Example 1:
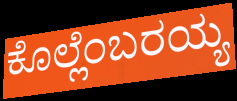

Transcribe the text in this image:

ಕೊಲ್ಲೆಂಬರಯ್ಯ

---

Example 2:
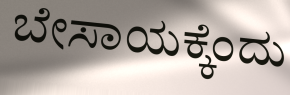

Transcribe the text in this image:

ಬೇಸಾಯಕ್ಕೆಂದು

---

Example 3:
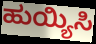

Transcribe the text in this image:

ಹುಯ್ಯಿಸಿ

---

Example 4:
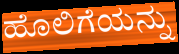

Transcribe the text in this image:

ಹೊಲಿಗೆಯನ್ನು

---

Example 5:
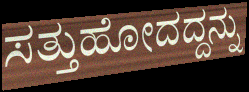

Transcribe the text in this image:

ಸತ್ತುಹೋದದ್ದನ್ನು